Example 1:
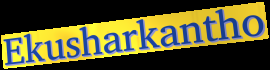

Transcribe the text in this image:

Ekusharkantho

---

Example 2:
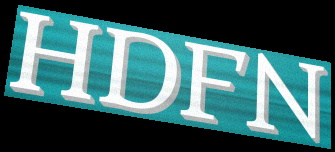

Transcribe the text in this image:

HDFN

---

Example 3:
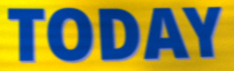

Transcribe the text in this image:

TODAY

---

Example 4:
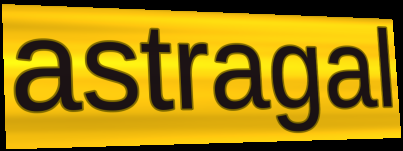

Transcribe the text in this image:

astragal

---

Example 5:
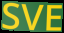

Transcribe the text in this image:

SVE